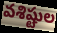
వశిష్టుల